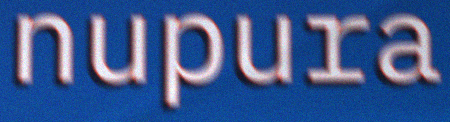
nupura